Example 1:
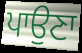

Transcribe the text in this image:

ਪਾਉਣਾ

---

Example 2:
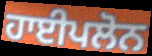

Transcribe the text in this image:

ਹਾਈਪਲੋਨ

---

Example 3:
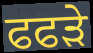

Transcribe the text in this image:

ਫਫੜੇ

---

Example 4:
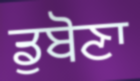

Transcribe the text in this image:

ਡੁਬੋਣਾ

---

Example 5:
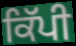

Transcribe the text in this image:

ਕਿੱਪੀ